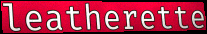
leatherette